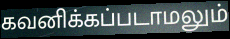
கவனிக்கப்படாமலும்